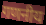
गणनीय